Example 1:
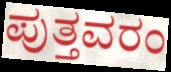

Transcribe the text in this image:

ಪುತ್ತವರಂ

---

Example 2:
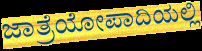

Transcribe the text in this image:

ಜಾತ್ರೆಯೋಪಾದಿಯಲ್ಲಿ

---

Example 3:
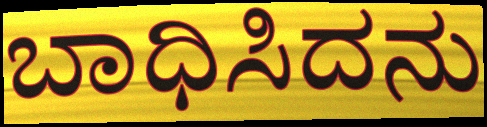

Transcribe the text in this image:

ಬಾಧಿಸಿದನು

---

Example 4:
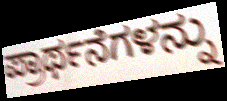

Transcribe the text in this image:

ಪ್ರಾರ್ಥನೆಗಳನ್ನು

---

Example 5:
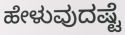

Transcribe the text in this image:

ಹೇಳುವುದಷ್ಟೆ